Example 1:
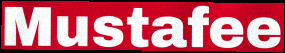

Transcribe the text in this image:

Mustafee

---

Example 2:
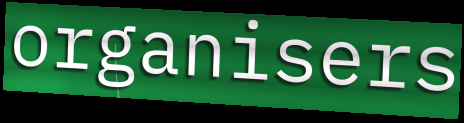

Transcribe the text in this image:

organisers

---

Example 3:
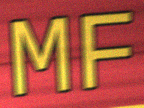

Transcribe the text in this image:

MF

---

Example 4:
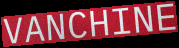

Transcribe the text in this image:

VANCHINE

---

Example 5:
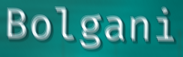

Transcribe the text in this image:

Bolgani